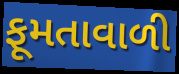
ફૂમતાવાળી